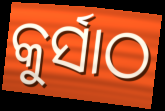
କୁର୍ସାଠ